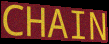
CHAIN